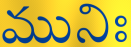
మునిః